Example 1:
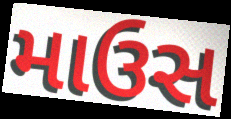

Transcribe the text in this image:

માઉસ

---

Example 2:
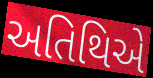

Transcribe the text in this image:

અતિથિએ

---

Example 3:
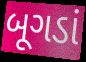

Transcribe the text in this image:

બૂગડાં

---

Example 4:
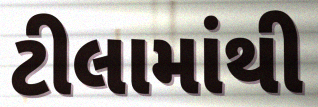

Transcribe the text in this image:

ટીલામાંથી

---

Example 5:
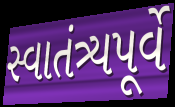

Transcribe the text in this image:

સ્વાતંત્ર્યપૂર્વે